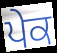
ਪੇਕ